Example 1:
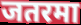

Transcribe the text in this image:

जतरमा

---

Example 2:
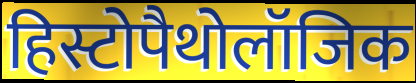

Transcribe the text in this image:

हिस्टोपैथोलॉजिक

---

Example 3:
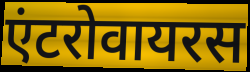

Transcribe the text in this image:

एंटरोवायरस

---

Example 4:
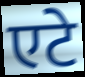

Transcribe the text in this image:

एटे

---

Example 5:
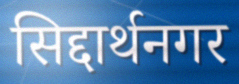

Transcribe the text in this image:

सिद्दार्थनगर